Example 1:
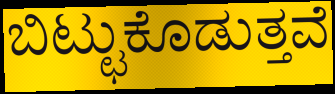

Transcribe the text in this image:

ಬಿಟ್ಟುಕೊಡುತ್ತವೆ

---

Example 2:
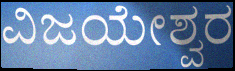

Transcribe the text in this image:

ವಿಜಯೇಶ್ವರ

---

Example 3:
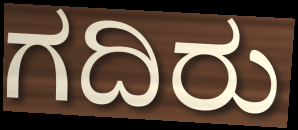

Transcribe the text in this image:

ಗದಿರು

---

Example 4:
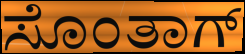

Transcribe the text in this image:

ಸೊಂತಾಗ್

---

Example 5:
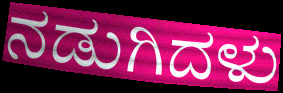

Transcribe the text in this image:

ನಡುಗಿದಳು